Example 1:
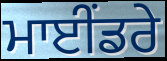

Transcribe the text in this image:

ਮਾਈਂਡਰੇ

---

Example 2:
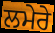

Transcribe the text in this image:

ਲਮੇਰੇ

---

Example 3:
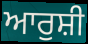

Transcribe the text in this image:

ਆਰੁਸ਼ੀ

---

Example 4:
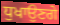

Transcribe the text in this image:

ਧੁਖਾਉਣਗੇ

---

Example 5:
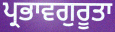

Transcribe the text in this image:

ਪ੍ਰਭਾਵਗੁਰੂਤਾ